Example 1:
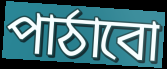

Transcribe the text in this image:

পাঠাবো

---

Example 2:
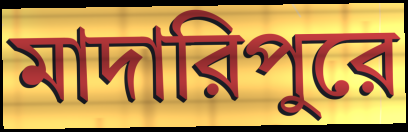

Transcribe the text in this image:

মাদারিপুরে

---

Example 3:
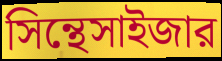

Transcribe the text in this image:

সিন্থেসাইজার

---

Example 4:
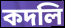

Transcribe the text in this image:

কদলি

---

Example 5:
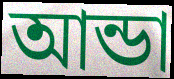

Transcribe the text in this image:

আন্ডা